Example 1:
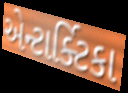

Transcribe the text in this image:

એન્ટાર્ક્ટિકા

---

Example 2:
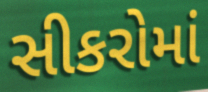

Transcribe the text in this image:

સીકરોમાં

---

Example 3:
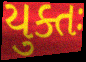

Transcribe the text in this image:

યુક્તઃ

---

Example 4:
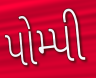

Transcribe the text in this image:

પોમ્પી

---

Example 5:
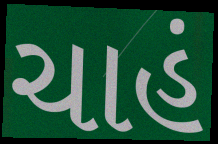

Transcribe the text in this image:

ચાહં